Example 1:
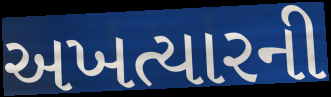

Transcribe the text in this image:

અખત્યારની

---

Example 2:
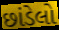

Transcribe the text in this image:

છાંડેલો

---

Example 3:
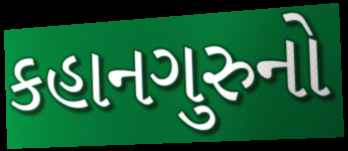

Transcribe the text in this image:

કહાનગુરુનો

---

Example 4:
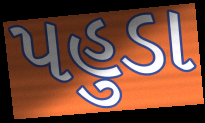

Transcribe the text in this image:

પહુડા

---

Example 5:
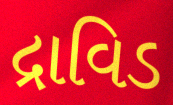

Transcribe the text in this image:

દ્રાવિડ